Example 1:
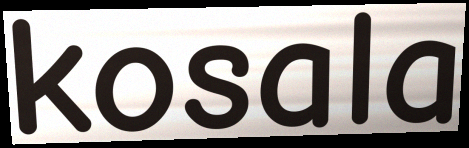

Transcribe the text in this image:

kosala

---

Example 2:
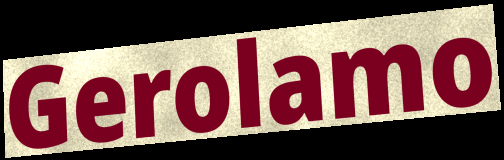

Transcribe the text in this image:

Gerolamo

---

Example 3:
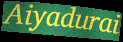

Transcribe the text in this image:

Aiyadurai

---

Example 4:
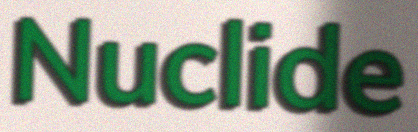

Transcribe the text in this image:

Nuclide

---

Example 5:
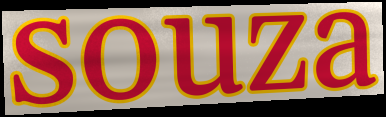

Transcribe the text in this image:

souza